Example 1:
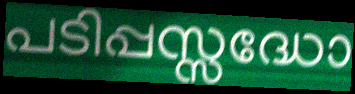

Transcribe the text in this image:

പടിപ്പസ്സദ്ധോ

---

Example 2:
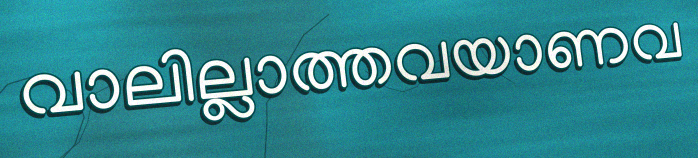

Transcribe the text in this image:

വാലില്ലാത്തവയാണവ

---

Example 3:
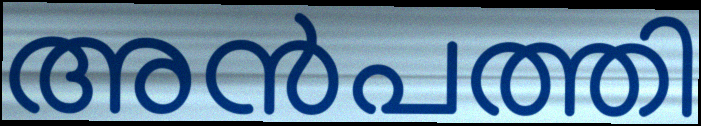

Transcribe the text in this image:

അൻപത്തി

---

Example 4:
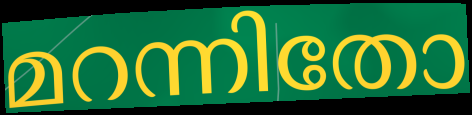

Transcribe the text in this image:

മറന്നിതോ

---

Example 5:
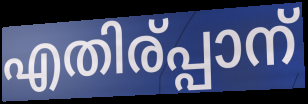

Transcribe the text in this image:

എതിര്പ്പാന്